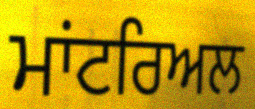
ਮਾਂਟਰਿਅਲ